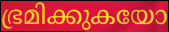
ഭ്രമിക്കുകയോ